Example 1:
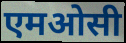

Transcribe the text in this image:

एमओसी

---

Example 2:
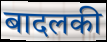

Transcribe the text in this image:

बादलकी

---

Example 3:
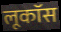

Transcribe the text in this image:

लूकॉस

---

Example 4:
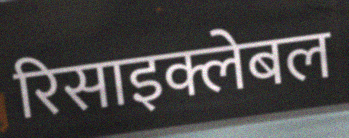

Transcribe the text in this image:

रिसाइक्लेबल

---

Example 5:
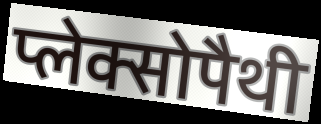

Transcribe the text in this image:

प्लेक्सोपैथी